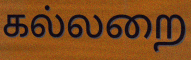
கல்லறை